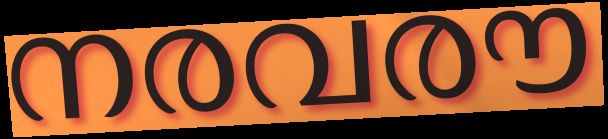
നരവരൗ